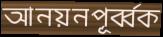
আনয়নপূর্ব্বক